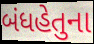
બંધહેતુના